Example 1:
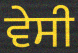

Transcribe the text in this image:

ਵੇਸੀ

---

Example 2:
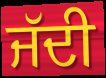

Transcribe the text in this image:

ਜੱਦੀ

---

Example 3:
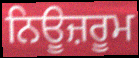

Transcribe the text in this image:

ਨਿਊਜ਼ਰੂਮ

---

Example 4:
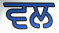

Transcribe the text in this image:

ਵਲ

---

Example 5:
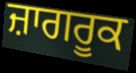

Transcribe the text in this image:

ਜ਼ਾਗਰੂਕ